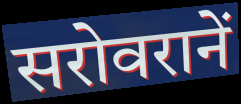
सरोवरानें